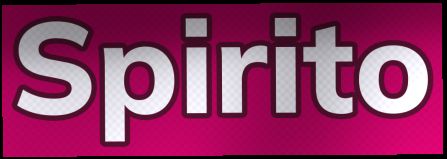
Spirito